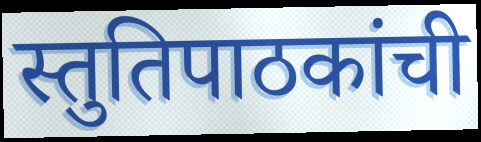
स्तुतिपाठकांची